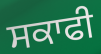
ਸਕਾਫੀ